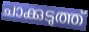
ചാക്കുടുത്ത്